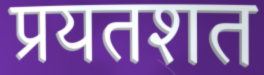
प्रयतशत